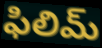
ఫిలిమ్